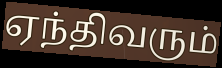
ஏந்திவரும்